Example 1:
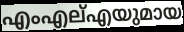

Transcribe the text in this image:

എംഎല്എയുമായ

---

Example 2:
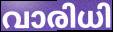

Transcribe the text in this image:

വാരിധി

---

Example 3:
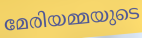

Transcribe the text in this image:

മേരിയമ്മയുടെ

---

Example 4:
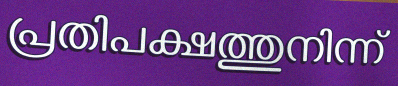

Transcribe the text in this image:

പ്രതിപക്ഷത്തുനിന്ന്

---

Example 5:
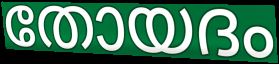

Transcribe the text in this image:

തോയദം